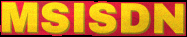
MSISDN